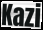
Kazi